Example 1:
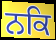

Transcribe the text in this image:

ਨਕਿ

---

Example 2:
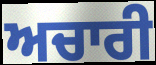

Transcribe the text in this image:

ਅਚਾਰੀ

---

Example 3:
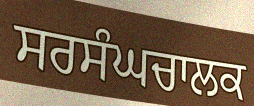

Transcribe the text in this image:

ਸਰਸੰਘਚਾਲਕ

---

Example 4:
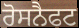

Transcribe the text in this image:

ਰੋਸਨੈਫਟ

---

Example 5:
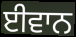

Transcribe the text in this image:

ਈਵਾਨ